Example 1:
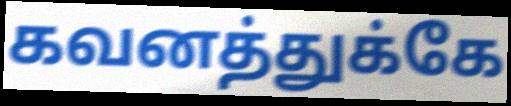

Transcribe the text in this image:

கவனத்துக்கே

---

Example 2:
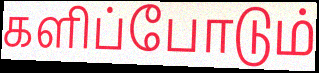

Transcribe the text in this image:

களிப்போடும்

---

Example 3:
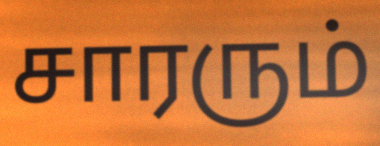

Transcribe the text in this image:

சாரரும்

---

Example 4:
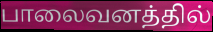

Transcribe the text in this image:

பாலைவனத்தில்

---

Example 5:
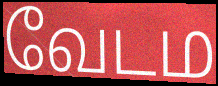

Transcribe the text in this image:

வேடம